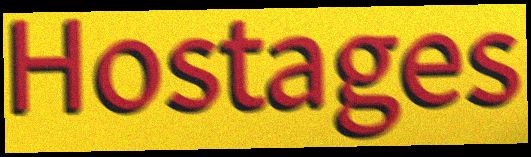
Hostages